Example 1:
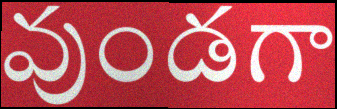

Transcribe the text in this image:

వుండగా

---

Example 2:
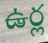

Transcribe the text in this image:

ఉర్ల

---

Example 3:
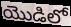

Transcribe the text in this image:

యొడిలో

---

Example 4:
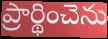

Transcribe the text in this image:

ప్రార్థించెను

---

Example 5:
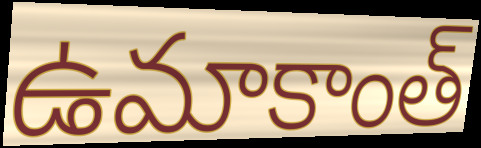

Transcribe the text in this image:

ఉమాకాంత్